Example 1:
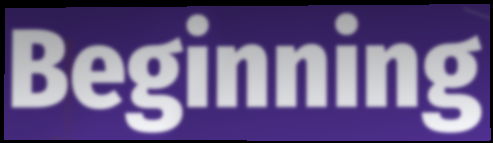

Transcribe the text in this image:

Beginning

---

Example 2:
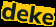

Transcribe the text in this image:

deke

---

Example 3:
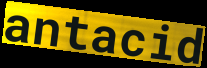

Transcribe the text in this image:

antacid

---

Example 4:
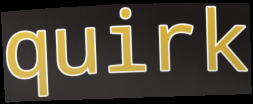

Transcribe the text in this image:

quirk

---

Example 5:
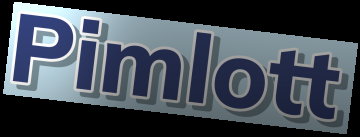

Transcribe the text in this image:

Pimlott